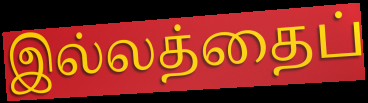
இல்லத்தைப்